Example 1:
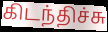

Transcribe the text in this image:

கிடந்திச்சு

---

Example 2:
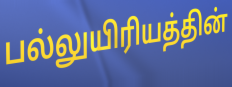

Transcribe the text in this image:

பல்லுயிரியத்தின்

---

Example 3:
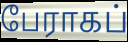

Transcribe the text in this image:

பேராகப்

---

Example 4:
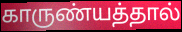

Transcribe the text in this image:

காருண்யத்தால்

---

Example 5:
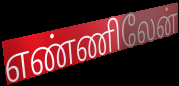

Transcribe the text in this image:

எண்ணிலேன்